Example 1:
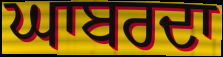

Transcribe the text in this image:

ਘਾਬਰਦਾ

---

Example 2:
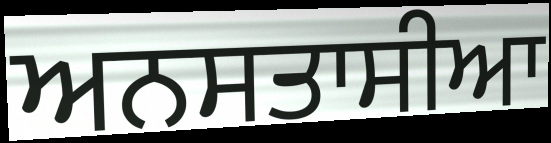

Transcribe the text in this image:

ਅਨਸਤਾਸੀਆ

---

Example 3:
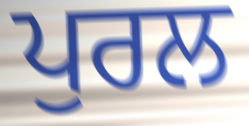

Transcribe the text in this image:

ਪੁਰਲ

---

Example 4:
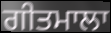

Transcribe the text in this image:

ਗੀਤਮਾਲਾ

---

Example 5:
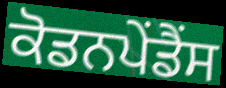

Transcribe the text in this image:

ਕੋਡਨਪੇਂਡੈਂਸ